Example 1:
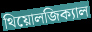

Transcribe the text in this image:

থিয়োলজিক্যাল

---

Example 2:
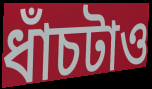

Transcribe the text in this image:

ধাঁচটাও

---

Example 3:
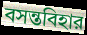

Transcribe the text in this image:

বসন্তবিহার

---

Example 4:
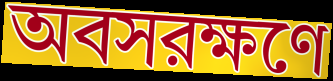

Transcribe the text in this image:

অবসরক্ষণে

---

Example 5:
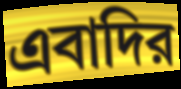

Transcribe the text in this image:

এবাদির